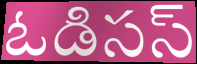
ఓడిసస్